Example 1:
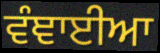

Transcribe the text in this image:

ਵੰਞਾਈਆ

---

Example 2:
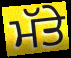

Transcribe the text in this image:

ਮੱਤੇ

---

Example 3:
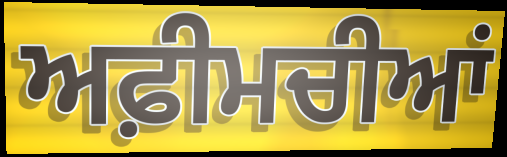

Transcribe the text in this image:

ਅਫ਼ੀਮਚੀਆਂ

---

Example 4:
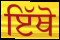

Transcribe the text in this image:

ਇੱਥੋ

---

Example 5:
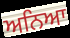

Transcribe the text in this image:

ਅਨਿਆ